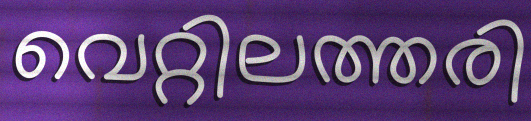
വെറ്റിലത്തരി